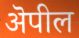
ऄपील